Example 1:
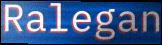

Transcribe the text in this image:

Ralegan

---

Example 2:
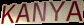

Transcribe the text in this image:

KANYA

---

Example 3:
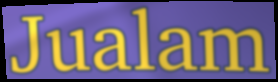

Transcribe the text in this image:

Jualam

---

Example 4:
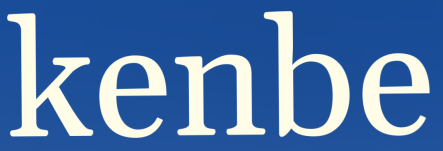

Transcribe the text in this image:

kenbe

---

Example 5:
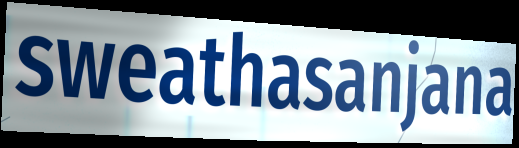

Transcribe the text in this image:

sweathasanjana